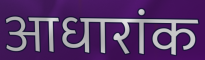
आधारांक